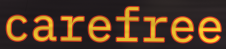
carefree